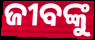
ଜୀବଙ୍କୁ